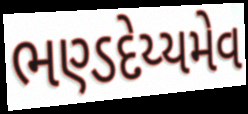
ભણ્ડદેય્યમેવ